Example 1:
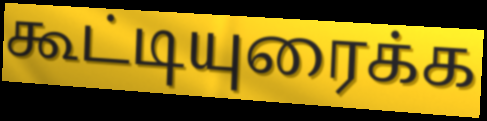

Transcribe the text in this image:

கூட்டியுரைக்க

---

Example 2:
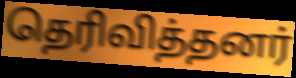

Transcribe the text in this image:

தெரிவித்தனர்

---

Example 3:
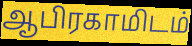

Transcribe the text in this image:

ஆபிரகாமிடம்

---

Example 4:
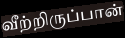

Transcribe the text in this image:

வீற்றிருப்பான்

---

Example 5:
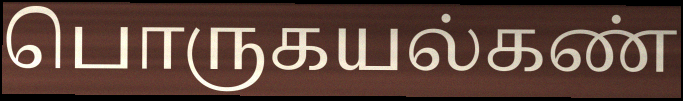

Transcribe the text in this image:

பொருகயல்கண்